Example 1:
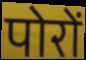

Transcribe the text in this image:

पोरों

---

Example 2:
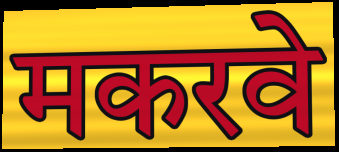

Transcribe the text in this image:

मकरवे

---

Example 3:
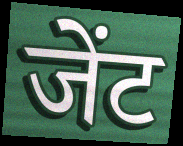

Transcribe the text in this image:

जेंट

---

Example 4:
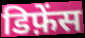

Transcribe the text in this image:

डिफ़ेंस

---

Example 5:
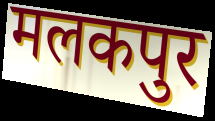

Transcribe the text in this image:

मलकपुर